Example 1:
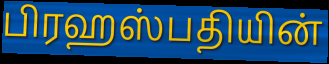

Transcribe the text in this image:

பிரஹஸ்பதியின்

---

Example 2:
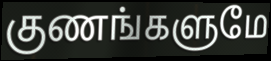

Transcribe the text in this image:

குணங்களுமே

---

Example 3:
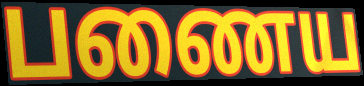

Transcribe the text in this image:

பணைய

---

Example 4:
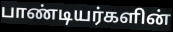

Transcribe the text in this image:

பாண்டியர்களின்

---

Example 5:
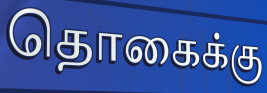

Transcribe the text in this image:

தொகைக்கு